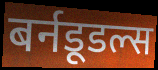
बर्नडूडल्स